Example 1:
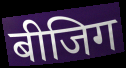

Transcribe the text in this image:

बीजिग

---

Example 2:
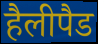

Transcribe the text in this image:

हैलीपैड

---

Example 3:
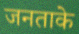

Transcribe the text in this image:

जनताके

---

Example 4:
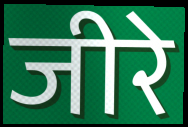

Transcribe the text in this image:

जीरे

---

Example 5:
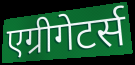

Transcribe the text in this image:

एग्रीगेटर्स